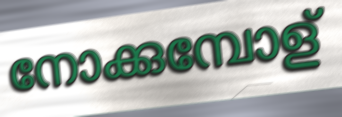
നോക്കുമ്പോള്